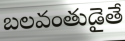
బలవంతుడైతే